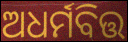
ଅଧର୍ମବିତ୍ତ